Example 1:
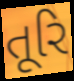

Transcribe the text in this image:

તૂરિ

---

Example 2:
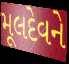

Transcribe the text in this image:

મૂલદેવને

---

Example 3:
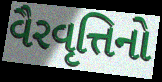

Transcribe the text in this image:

વૈરવૃત્તિનો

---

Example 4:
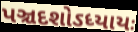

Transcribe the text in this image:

પઞ્ચદશોઽધ્યાયઃ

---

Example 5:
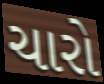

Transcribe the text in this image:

ચારો